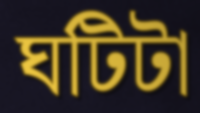
ঘটিটা